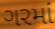
ગરમાં